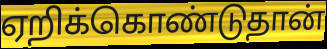
ஏறிக்கொண்டுதான்